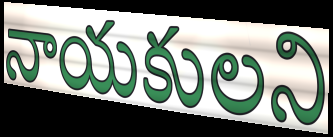
నాయకులని